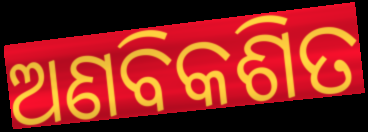
ଅଣବିକଶିତ